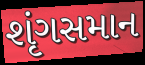
શૃંગસમાન